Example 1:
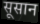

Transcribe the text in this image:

सूसान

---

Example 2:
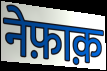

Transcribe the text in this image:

नेफ़ाक़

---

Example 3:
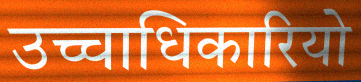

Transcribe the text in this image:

उच्चाधिकारियो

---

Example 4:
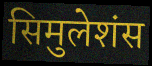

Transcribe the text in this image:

सिमुलेशंस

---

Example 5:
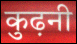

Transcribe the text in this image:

कुढ़नी